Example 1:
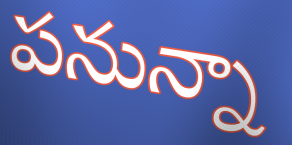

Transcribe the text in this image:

పనున్నా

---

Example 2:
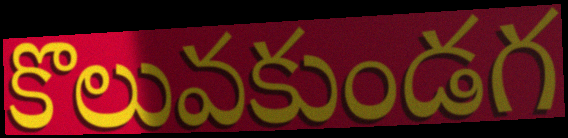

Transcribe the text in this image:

కొలువకుండగ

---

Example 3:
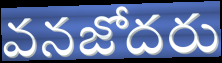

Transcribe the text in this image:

వనజోదరు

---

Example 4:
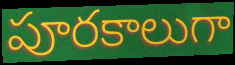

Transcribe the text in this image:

పూరకాలుగా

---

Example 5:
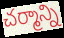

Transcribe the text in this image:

చర్మాన్ని